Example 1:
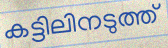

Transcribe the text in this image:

കട്ടിലിനടുത്ത്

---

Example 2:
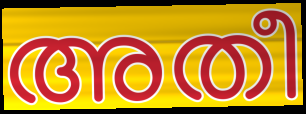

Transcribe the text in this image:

അതീ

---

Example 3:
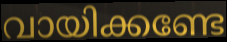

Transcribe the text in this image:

വായിക്കണ്ടേ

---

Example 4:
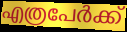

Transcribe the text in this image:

എത്രപേർക്ക്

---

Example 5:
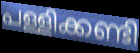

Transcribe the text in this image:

പള്ളിക്കണ്ടി